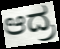
ಆದ್ರ